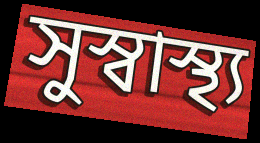
সুস্বাস্থ্য